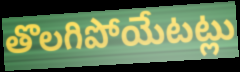
తొలగిపోయేటట్లు